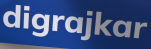
digrajkar